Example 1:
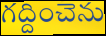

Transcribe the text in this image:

గద్దించెను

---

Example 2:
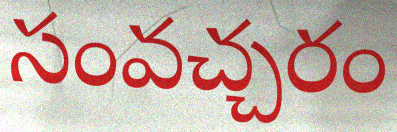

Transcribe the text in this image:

సంవచ్చరం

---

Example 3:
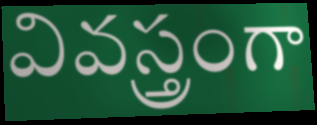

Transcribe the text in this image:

వివస్త్రంగా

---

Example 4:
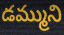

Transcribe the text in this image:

డమ్ముని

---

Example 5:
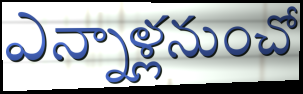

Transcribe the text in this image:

ఎన్నాళ్లనుంచో